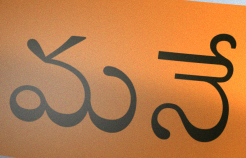
మనే